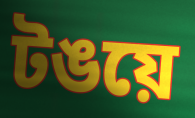
টঙয়ে